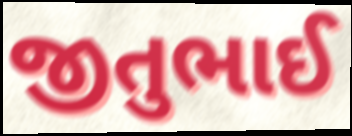
જીતુભાઈ